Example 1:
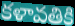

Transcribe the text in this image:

కళావతికి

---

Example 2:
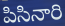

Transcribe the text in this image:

పిసినారి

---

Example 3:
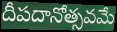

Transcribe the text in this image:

దీపదానోత్సవమే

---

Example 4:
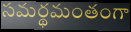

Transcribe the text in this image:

సమర్థమంతంగా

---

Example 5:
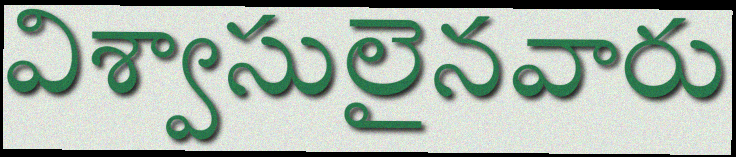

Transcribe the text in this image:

విశ్వాసులైనవారు